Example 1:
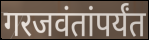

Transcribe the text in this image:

गरजवंतांपर्यंत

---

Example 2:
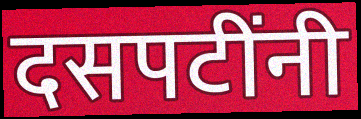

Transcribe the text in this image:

दसपटींनी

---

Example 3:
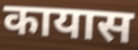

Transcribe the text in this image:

कायास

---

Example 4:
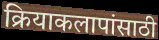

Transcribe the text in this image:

क्रियाकलापांसाठी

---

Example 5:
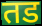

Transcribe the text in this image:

तड